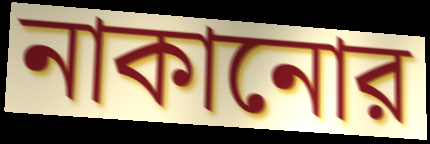
নাকানোর